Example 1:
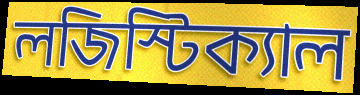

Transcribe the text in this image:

লজিস্টিক্যাল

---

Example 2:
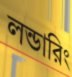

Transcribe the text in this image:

লন্ডারিং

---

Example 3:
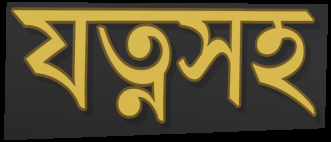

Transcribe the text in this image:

যত্নসহ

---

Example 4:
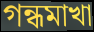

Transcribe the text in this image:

গন্ধমাখা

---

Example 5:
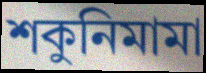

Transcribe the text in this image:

শকুনিমামা